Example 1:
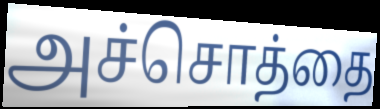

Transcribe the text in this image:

அச்சொத்தை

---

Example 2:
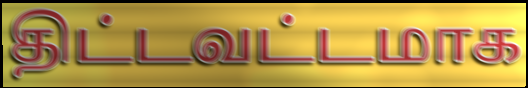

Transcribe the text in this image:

திட்டவட்டமாக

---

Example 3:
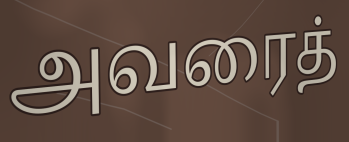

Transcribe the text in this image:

அவரைத்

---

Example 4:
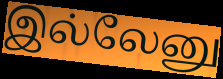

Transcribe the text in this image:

இல்லேனு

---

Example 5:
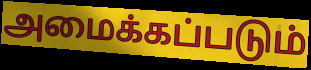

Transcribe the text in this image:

அமைக்கப்படும்